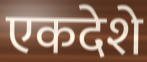
एकदेशे